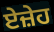
ਏਜ਼ੇਹ